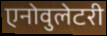
एनोवुलेटरी